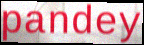
pandey